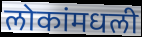
लोकांमधली